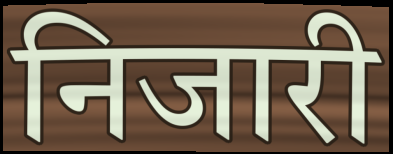
निजारी